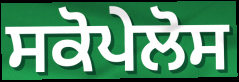
ਸਕੋਪੇਲੋਸ